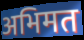
अभिमत